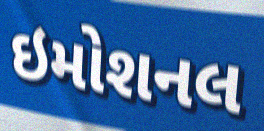
ઇમોશનલ